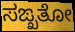
ಸಙ್ಖತೋ